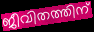
ജീവിതത്തിന്